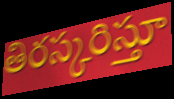
తిరస్కరిస్తూ